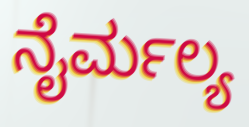
ನೈರ್ಮಲ್ಯ